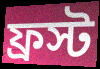
ফ্রস্ট